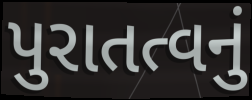
પુરાતત્વનું